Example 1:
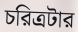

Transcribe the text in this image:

চরিত্রটার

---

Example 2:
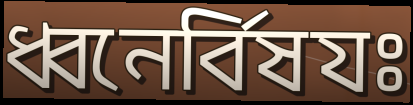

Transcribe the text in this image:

ধ্বনের্বিষযঃ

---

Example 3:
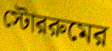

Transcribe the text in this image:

স্টোররুমের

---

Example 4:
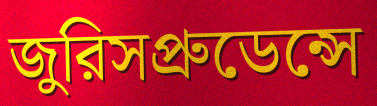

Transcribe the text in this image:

জুরিসপ্রুডেন্সে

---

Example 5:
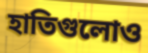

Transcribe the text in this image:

হাতিগুলোও